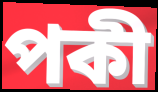
পকী